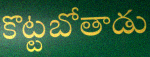
కొట్టబోతాడు